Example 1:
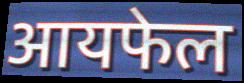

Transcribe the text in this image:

आयफेल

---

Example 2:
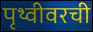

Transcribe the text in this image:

पृथ्वीवरची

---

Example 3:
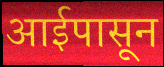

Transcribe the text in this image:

आईपासून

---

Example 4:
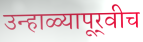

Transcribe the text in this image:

उन्हाळ्यापूर्वीच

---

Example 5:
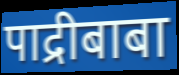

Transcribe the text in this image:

पाद्रीबाबा